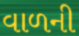
વાળની